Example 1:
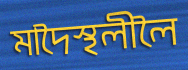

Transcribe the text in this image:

মাদৈস্থলীলৈ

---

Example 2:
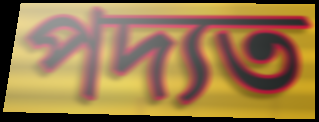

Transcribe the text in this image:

পদ্যত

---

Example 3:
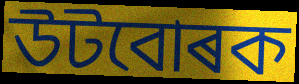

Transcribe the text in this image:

উটবোৰক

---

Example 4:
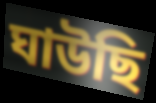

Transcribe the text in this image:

ঘাউছি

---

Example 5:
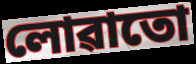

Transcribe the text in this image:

লোৱাতো